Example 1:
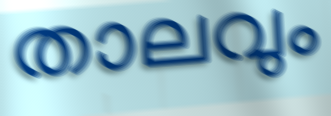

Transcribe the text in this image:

താലവും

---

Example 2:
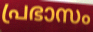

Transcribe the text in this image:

പ്രഭാസം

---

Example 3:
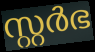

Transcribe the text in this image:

സ്റ്റർഭ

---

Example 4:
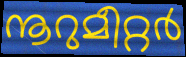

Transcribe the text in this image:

നൂറുമീറ്റർ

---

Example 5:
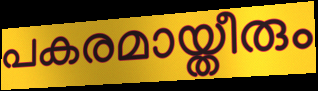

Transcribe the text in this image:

പകരമായ്തീരും